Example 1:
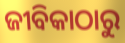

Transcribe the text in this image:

ଜୀବିକାଠାରୁ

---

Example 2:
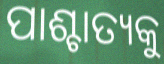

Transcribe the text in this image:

ପାଶ୍ଚାତ୍ୟକୁ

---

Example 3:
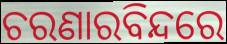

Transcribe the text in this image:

ଚରଣାରବିନ୍ଦରେ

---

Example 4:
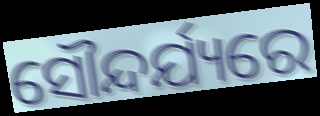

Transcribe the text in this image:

ସୌନ୍ଦର୍ଯ୍ୟରେ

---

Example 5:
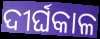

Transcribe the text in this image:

ଦୀର୍ଘକାଳ